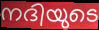
നദിയുടെ